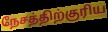
நேசத்திற்குரிய